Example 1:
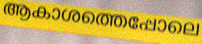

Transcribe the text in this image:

ആകാശത്തെപ്പോലെ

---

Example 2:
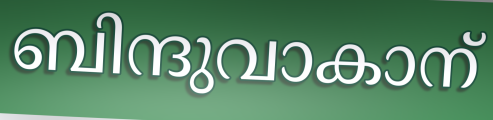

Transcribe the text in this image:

ബിന്ദുവാകാന്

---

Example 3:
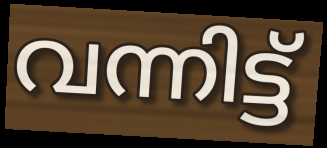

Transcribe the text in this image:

വന്നിട്ട്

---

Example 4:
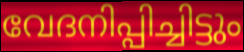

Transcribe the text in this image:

വേദനിപ്പിച്ചിട്ടും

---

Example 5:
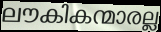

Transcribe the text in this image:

ലൗകികന്മാരല്ല